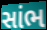
સાંભ